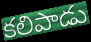
కలిపాడు